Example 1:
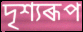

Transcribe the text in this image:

দৃশ্যৰূপ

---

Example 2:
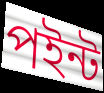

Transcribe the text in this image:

পইন্ট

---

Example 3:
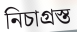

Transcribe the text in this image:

নিচাগ্ৰস্ত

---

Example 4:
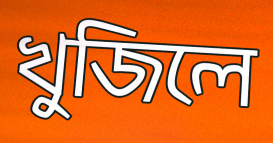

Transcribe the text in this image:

খুজিলে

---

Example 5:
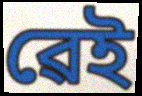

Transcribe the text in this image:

ৱেই